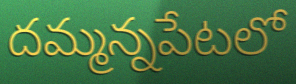
దమ్మన్నపేటలో